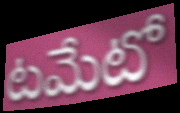
టమేటో